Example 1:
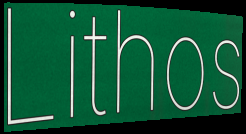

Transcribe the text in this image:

Lithos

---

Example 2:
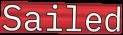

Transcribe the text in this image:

Sailed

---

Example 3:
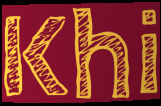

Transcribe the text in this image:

Khi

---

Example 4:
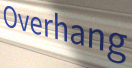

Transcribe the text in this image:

Overhang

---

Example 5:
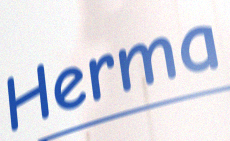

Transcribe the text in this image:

Herma